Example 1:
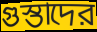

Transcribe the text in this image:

গুস্তাদের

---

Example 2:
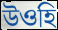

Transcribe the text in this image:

উওহি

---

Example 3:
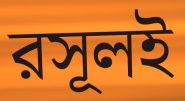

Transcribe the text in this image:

রসূলই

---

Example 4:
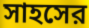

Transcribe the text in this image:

সাহসের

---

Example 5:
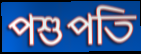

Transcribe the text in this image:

পশুপতি